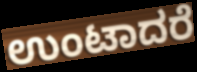
ಉಂಟಾದರೆ